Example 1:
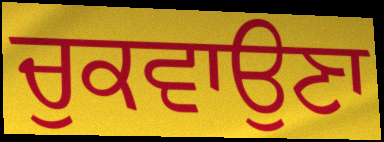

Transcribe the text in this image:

ਚੁਕਵਾਉਣਾ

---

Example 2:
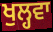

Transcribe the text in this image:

ਖੁਲ੍ਹਵਾ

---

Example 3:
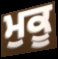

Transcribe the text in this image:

ਮੁਕੂ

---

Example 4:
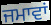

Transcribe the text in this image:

ਜਮਾਵਾਂ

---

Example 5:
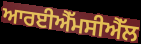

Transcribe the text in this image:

ਆਰਈਐੱਮਸੀਐੱਲ